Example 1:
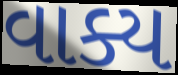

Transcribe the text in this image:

વાક્ય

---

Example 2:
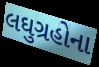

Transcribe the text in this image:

લઘુગ્રહોના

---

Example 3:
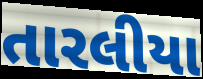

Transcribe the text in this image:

તારલીયા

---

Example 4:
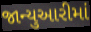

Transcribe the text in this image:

જાન્યુઆરીમાં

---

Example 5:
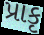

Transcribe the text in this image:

પ્રાકૃ